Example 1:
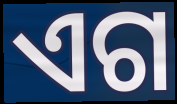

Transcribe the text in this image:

ଏଗ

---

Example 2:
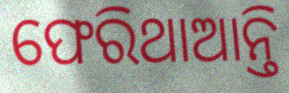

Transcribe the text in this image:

ଫେରିଥାଆନ୍ତି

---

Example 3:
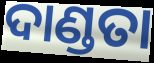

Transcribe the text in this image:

ଦାଣ୍ଡତା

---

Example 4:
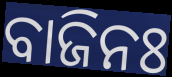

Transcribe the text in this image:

ବାଜିନଃ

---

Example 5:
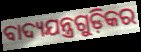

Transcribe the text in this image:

ବାଦ୍ୟଯନ୍ତ୍ରଗୁଡ଼ିକର